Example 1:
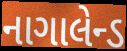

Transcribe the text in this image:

નાગાલેન્ડ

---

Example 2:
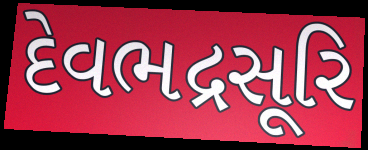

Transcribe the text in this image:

દેવભદ્રસૂરિ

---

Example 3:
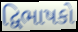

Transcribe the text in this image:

દ્વિભાષકો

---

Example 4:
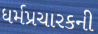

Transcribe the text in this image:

ધર્મપ્રચારકની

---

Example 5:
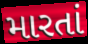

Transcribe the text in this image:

મારતાં